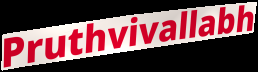
Pruthvivallabh